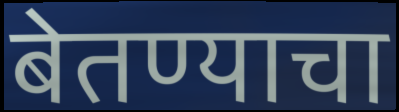
बेतण्याचा